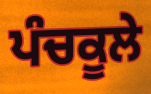
ਪੰਚਕੂਲੇ